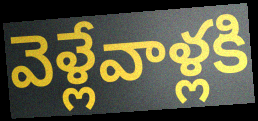
వెళ్లేవాళ్లకి